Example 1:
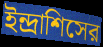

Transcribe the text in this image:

ইন্দ্রাশিসের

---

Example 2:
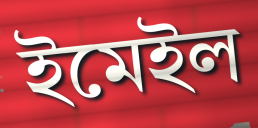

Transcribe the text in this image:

ইমেইল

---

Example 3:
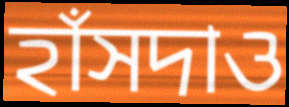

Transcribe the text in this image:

হাঁসদাও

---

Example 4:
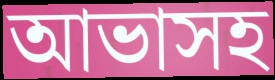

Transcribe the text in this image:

আভাসহ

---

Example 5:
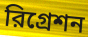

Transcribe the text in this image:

রিগ্রেশন